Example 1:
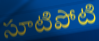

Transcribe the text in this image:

సూటిపోటి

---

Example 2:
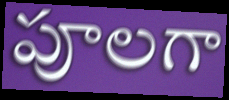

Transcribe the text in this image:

పూలగా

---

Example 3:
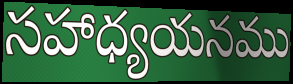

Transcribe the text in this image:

సహాధ్యయనము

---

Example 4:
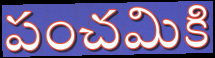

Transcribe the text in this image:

పంచమికి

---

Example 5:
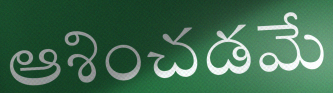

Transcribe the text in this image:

ఆశించడమే